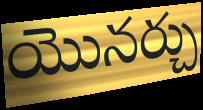
యొనర్చు